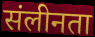
संलीनता